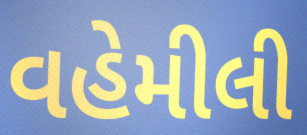
વહેમીલી